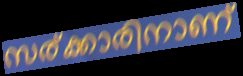
സര്ക്കാരിനാണ്